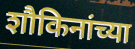
शौकिनांच्या